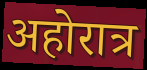
अहोरात्र